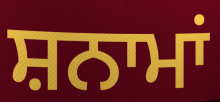
ਸ਼ਨਾਮਾਂ